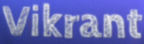
Vikrant